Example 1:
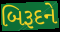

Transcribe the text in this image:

બિરૂદને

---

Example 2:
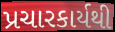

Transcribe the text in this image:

પ્રચારકાર્યથી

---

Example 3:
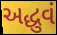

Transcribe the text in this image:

અદ્ધુવં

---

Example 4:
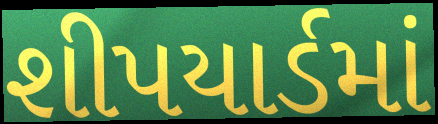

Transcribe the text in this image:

શીપયાર્ડમાં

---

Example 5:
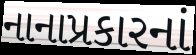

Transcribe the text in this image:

નાનાપ્રકારનાં